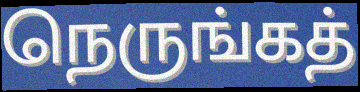
நெருங்கத்